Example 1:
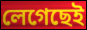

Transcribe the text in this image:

লেগেছেই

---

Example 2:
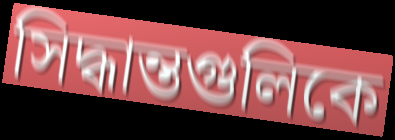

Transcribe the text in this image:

সিদ্ধান্তগুলিকে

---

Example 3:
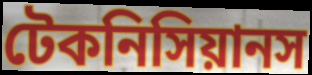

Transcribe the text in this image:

টেকনিসিয়ানস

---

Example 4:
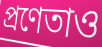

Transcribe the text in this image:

প্রণেতাও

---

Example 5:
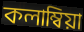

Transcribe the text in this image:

কলাম্বিয়া